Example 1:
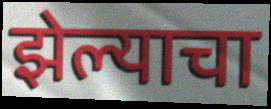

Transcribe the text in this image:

झेल्याचा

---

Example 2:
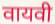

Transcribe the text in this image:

वायवी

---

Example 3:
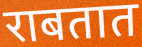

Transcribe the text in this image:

राबतात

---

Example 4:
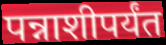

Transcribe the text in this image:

पन्नाशीपर्यंत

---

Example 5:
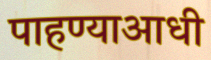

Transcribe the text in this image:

पाहण्याआधी